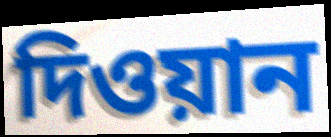
দিওয়ান